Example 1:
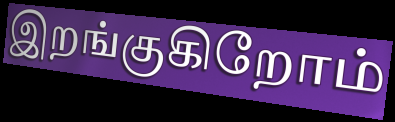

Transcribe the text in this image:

இறங்குகிறோம்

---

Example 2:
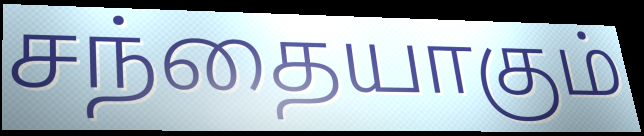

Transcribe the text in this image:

சந்தையாகும்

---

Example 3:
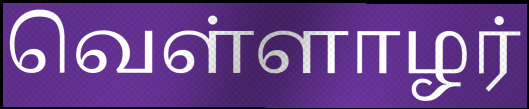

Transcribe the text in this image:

வெள்ளாழர்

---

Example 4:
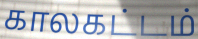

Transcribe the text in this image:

காலகட்டம்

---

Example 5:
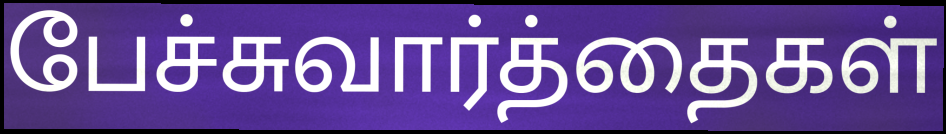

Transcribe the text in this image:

பேச்சுவார்த்தைகள்